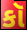
કૉ